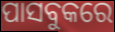
ପାସବୁକରେ